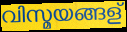
വിസ്മയങ്ങള്